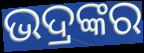
ଭଦ୍ରଙ୍କର